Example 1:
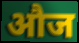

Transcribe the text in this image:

औज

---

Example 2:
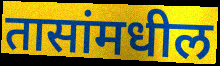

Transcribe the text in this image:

तासांमधील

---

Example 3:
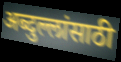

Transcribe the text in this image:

अब्दुल्लांसाठी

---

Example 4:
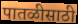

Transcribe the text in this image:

पातळीसाठी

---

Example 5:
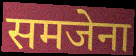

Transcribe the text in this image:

समजेना